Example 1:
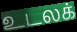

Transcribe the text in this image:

உடலக்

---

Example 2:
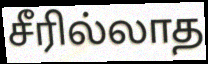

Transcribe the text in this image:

சீரில்லாத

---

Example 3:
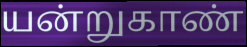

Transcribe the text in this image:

யன்றுகாண்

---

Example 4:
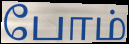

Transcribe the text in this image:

போம்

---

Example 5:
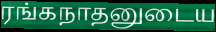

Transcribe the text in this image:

ரங்கநாதனுடைய